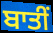
ਬਾਤੀਂ